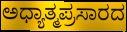
ಅಧ್ಯಾತ್ಮಪ್ರಸಾರದ